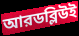
আরডব্লিউই